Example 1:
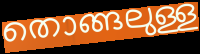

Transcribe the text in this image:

തൊങ്ങലുള്ള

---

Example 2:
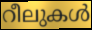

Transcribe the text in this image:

റീലുകൾ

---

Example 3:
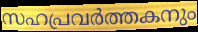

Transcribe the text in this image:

സഹപ്രവർത്തകനും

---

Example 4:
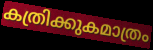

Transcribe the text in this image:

കത്രിക്കുകമാത്രം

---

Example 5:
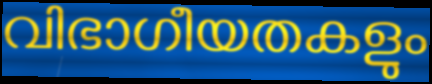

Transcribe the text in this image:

വിഭാഗീയതകളും